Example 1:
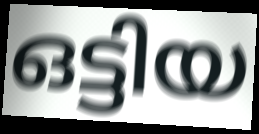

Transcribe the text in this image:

ഒട്ടിയ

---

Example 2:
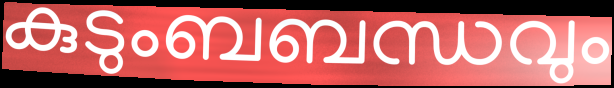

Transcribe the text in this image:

കുടുംബബന്ധവും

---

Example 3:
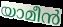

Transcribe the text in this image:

യാമീൻ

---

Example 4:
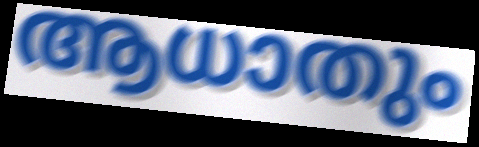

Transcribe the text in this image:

ആധാതും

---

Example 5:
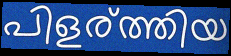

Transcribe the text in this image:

പിളര്ത്തിയ